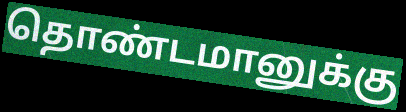
தொண்டமானுக்கு